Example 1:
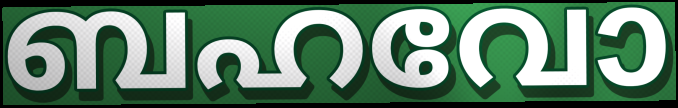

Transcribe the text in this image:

ബഹവോ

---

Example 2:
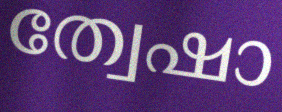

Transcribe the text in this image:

ത്വേഷാ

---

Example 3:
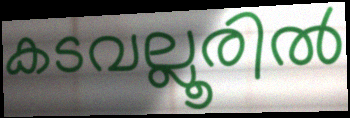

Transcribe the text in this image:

കടവല്ലൂരിൽ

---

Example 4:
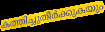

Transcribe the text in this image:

കത്തിച്ചുതീർക്കുകയും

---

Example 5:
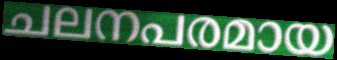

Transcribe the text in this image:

ചലനപരമായ